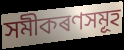
সমীকৰণসমূহ